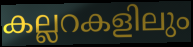
കല്ലറകളിലും